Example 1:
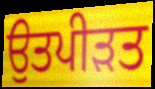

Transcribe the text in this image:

ਉਤਪੀੜਤ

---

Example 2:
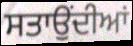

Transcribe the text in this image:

ਸਤਾਉਂਦੀਆਂ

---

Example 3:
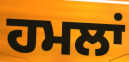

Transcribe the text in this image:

ਹਮਲਾਂ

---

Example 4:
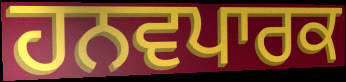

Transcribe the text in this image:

ਹਨਵਪਾਰਕ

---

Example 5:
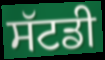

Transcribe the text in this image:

ਸੱਟਡੀ